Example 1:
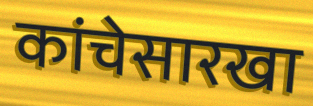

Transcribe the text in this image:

कांचेसारखा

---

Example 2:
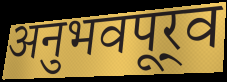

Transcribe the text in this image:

अनुभवपूर्व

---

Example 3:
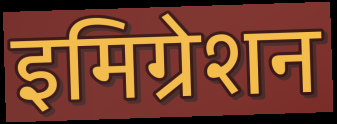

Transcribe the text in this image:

इमिग्रेशन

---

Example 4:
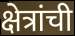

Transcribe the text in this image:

क्षेत्रांची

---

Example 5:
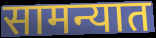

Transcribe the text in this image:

सामन्यात